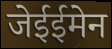
जेईईमेन